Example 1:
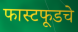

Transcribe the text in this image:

फास्टफूडचे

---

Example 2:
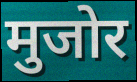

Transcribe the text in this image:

मुजोर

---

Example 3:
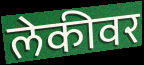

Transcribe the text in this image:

लेकीवर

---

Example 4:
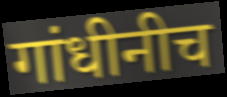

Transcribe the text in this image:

गांधीनीच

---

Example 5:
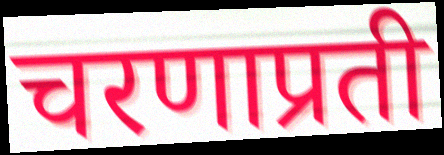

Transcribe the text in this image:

चरणाप्रती